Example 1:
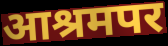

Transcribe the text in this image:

आश्रमपर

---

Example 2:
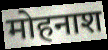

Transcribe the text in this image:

मोहनाश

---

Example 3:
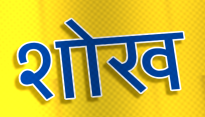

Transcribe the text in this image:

शोख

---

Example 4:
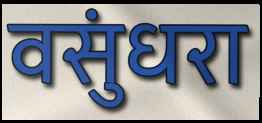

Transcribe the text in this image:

वसुंधरा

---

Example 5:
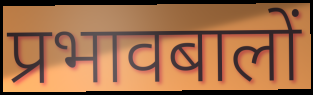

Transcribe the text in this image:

प्रभावबालों